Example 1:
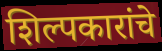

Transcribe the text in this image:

शिल्पकारांचे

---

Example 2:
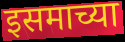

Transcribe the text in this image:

इसमाच्या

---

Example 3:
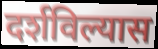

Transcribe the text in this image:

दर्शविल्यास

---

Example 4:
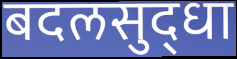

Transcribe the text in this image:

बदलसुद्धा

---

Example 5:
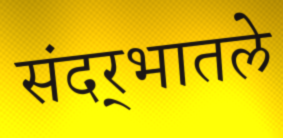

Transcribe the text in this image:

संदर्भातले